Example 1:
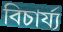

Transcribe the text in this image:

বিচাৰ্য্য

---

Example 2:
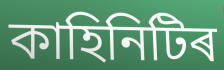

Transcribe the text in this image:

কাহিনিটিৰ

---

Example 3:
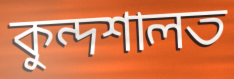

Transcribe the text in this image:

কুন্দশালত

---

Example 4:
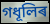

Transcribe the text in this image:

গধূলিৰ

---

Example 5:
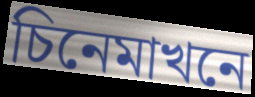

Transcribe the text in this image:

চিনেমাখনে